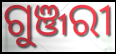
ଗୁଞ୍ଜରୀ